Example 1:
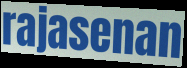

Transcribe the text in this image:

rajasenan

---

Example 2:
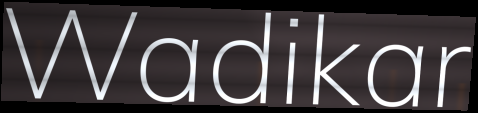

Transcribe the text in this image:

Wadikar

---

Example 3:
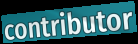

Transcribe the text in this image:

contributor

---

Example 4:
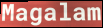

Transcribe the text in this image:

Magalam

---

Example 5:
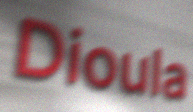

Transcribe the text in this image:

Dioula